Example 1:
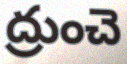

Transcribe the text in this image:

ద్రుంచె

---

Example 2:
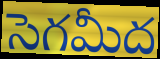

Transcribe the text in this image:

సెగమీద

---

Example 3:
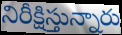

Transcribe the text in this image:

నిరీక్షిస్తున్నారు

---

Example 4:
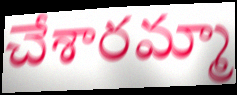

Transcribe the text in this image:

చేశారమ్మా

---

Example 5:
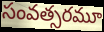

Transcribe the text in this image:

సంవత్సరమూ